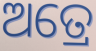
ଅତ୍ରେ